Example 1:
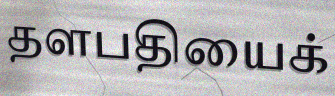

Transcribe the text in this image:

தளபதியைக்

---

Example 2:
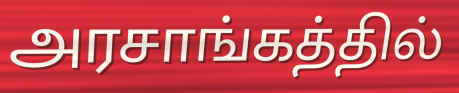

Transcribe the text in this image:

அரசாங்கத்தில்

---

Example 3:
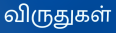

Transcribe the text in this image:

விருதுகள்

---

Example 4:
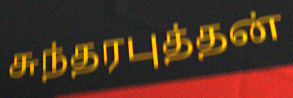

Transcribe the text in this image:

சுந்தரபுத்தன்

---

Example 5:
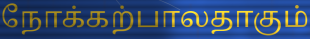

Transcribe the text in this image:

நோக்கற்பாலதாகும்